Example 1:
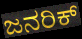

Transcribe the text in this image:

ಜನರಿಕ್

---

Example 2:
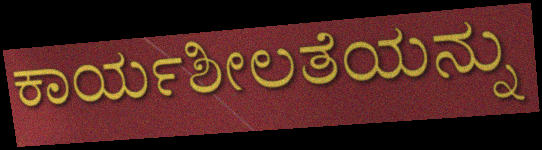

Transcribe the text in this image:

ಕಾರ್ಯಶೀಲತೆಯನ್ನು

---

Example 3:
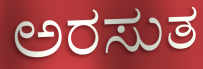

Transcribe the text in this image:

ಅರಸುತ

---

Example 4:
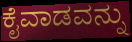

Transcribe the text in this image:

ಕೈವಾಡವನ್ನು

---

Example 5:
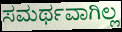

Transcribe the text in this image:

ಸಮರ್ಥವಾಗಿಲ್ಲ